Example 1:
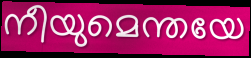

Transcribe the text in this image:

നീയുമെന്തയേ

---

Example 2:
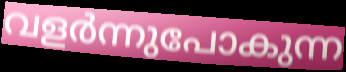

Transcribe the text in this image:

വളർന്നുപോകുന്ന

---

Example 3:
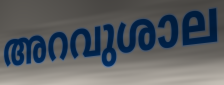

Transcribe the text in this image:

അറവുശാല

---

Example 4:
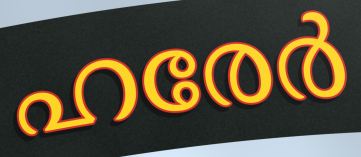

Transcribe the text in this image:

ഹരേർ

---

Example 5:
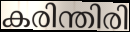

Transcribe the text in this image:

കരിന്തിരി